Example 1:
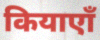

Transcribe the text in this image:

कियाएाँ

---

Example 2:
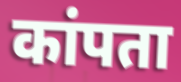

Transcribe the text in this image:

कांपता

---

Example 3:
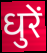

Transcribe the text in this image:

धुरें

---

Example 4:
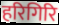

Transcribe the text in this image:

हरिगिरि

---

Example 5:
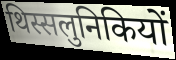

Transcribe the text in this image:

थिस्सलुनिकियों